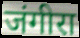
जंगीरा